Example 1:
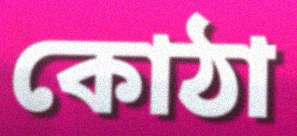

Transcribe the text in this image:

কোঠা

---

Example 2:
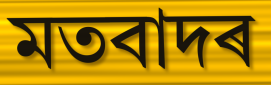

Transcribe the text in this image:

মতবাদৰ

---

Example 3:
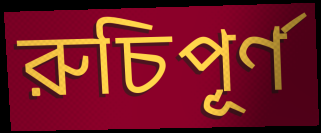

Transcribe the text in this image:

ৰুচিপূৰ্ণ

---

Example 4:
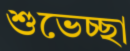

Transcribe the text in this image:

শুভেচ্ছা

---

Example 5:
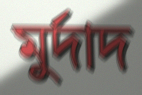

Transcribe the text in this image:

মুৰ্দাদ